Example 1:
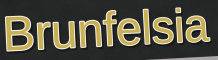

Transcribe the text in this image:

Brunfelsia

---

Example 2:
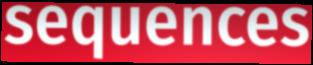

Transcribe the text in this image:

sequences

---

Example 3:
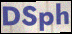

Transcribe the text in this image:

DSph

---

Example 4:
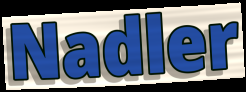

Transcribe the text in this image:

Nadler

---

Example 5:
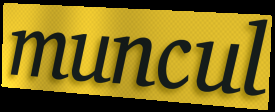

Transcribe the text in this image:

muncul